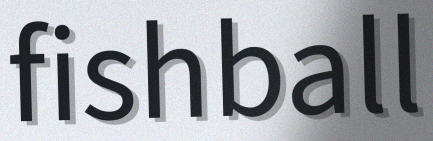
fishball